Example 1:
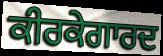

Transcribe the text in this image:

ਕੀਰਕੇਗਾਰਦ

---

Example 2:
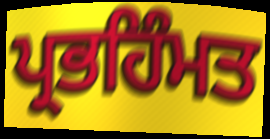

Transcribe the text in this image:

ਪ੍ਰਭਹਿੰਮਤ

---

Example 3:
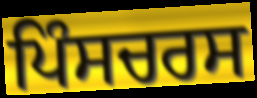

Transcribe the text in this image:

ਪਿੰਸਚਰਸ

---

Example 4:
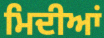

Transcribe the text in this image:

ਮਿਦੀਆਂ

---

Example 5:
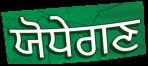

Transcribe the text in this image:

ਯੋਧੇਗਣ